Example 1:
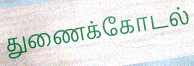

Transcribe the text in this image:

துணைக்கோடல்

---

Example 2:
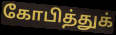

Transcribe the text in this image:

கோபித்துக்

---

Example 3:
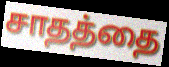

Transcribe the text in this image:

சாதத்தை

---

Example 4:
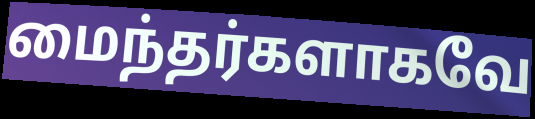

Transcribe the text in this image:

மைந்தர்களாகவே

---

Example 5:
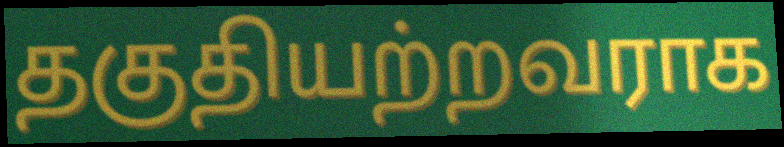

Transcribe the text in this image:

தகுதியற்றவராக